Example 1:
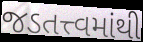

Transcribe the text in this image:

જડતત્ત્વમાંથી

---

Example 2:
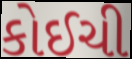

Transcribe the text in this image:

કોઈચી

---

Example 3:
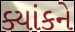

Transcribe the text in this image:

ક્યાંકને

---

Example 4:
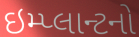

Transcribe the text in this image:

ઇમ્પ્લાન્ટનો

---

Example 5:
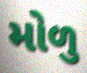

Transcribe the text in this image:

મોળુ